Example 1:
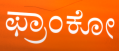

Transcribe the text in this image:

ಫ್ರಾಂಕೋ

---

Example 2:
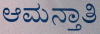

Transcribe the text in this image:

ಆಮನ್ತಾತಿ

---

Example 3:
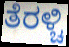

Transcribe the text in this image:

ತೆರಳ್ಚಿ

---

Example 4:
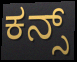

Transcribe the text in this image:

ಕನ್ಸ್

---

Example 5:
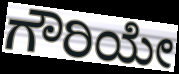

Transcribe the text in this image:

ಗೌರಿಯೇ